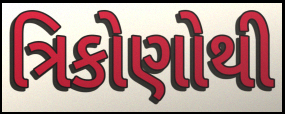
ત્રિકોણોથી